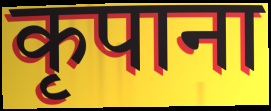
कृपाना